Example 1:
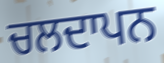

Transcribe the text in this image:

ਚਲਦਾਪਨ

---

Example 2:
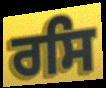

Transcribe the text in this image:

ਰਸਿ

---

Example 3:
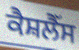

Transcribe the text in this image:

ਕੈਸ਼ਲੈੱਸ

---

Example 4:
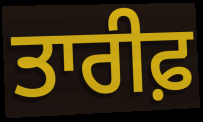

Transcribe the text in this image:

ਤਾਰੀਫ਼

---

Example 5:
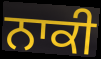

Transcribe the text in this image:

ਨਾਕੀ